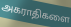
அகராதிகளை